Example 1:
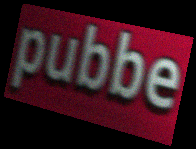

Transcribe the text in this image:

pubbe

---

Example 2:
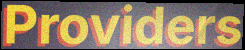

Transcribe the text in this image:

Providers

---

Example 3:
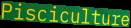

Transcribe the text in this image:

Pisciculture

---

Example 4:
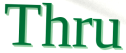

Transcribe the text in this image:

Thru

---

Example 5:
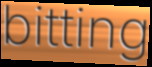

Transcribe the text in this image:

bitting